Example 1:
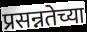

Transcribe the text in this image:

प्रसन्नतेच्या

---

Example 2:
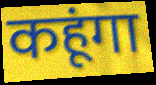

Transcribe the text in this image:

कहूंगा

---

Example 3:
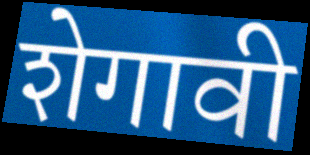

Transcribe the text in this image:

शेगावी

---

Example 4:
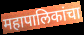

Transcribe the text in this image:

महापालिकांचा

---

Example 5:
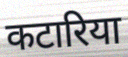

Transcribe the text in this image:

कटारिया